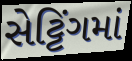
સેટ્ટિંગમાં